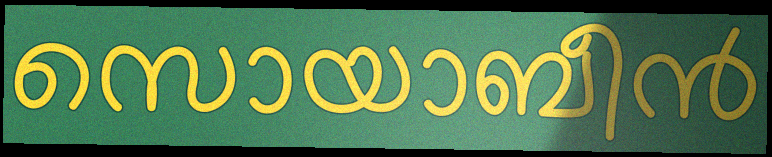
സൊയാബീൻ